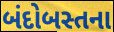
બંદોબસ્તના